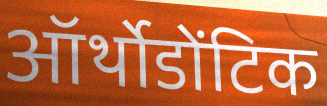
ऑर्थोडोंटिक